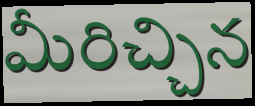
మీరిచ్చిన